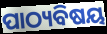
ପାଠ୍ୟବିଷୟ